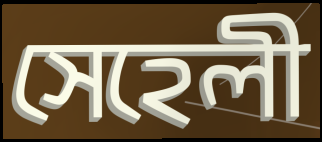
সেহেলী